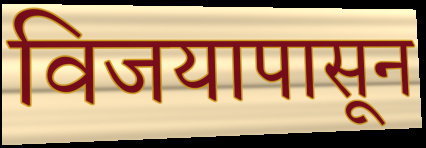
विजयापासून